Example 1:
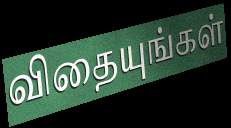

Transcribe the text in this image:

விதையுங்கள்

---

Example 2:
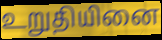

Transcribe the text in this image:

உறுதியினை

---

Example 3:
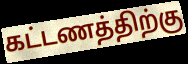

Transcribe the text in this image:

கட்டணத்திற்கு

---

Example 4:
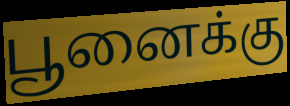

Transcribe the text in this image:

பூனைக்கு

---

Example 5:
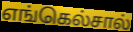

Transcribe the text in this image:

எங்கெல்சால்